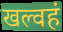
खल्वहं